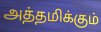
அத்தமிக்கும்